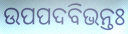
ଉପପଦବିଭନ୍ତଃ